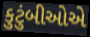
કુટુંબીઓએ